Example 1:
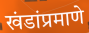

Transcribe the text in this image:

खंडांप्रमाणे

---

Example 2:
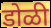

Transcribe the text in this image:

डोळी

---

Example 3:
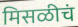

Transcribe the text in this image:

मिसळीचं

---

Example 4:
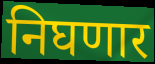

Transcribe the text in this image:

निघणार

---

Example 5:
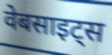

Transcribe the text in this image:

वेबसाइट्स